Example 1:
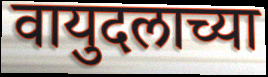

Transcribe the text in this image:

वायुदलाच्या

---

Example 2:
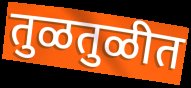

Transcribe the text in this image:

तुळतुळीत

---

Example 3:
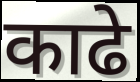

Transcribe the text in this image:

काढे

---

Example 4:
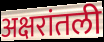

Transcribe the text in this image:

अक्षरांतली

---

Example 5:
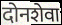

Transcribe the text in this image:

दोनशेवा